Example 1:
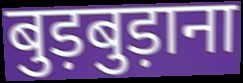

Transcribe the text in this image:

बुड़बुड़ाना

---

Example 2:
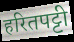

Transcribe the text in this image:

हरितपट्टी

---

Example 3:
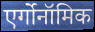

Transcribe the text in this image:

एर्गोनॉमिक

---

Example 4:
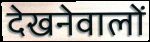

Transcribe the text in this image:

देखनेवालों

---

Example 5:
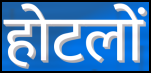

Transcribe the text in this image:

होटलों